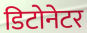
डिटोनेटर